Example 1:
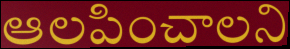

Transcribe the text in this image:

ఆలపించాలని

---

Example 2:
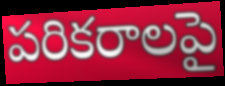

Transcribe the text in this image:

పరికరాలపై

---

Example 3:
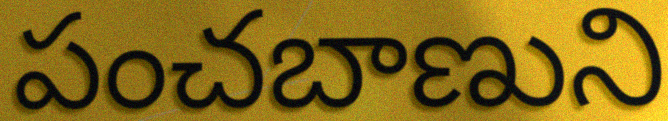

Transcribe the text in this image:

పంచబాణుని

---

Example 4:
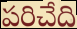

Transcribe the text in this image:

పరిచేది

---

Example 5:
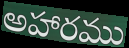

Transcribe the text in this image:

అహారము